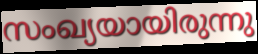
സംഖ്യയായിരുന്നു